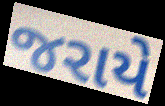
જરાયે